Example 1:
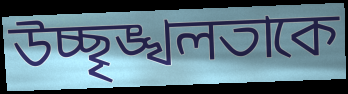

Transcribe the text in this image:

উচ্ছৃঙ্খলতাকে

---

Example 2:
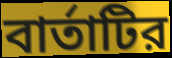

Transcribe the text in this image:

বার্তাটির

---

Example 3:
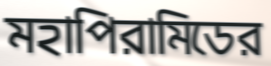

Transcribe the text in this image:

মহাপিরামিডের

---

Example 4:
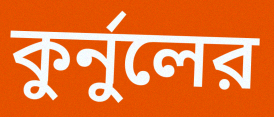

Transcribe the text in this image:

কুর্নুলের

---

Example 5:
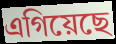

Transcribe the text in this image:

এগিয়েছে